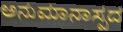
ಅನುಮಾನಾಸ್ಪದ